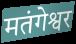
मतंगेश्वर